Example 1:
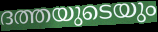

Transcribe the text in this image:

ദത്തയുടെയും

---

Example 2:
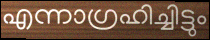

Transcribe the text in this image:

എന്നാഗ്രഹിച്ചിട്ടും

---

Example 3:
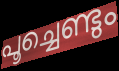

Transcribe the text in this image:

പൂച്ചെണ്ടും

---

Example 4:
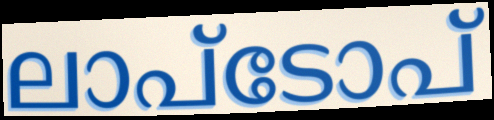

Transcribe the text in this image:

ലാപ്ടോപ്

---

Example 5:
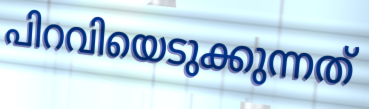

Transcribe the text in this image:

പിറവിയെടുക്കുന്നത്